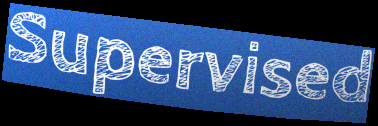
Supervised